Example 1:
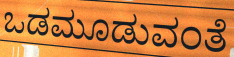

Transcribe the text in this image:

ಒಡಮೂಡುವಂತೆ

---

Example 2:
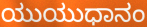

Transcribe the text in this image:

ಯುಯುಧಾನಂ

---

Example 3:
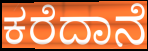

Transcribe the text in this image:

ಕರೆದಾನೆ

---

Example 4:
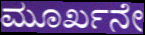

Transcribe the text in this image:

ಮೂರ್ಖನೇ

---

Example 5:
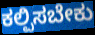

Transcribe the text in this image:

ಕಲ್ಪಿಸಬೇಕು